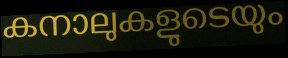
കനാലുകളുടെയും